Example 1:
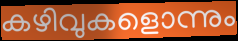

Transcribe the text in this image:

കഴിവുകളൊന്നും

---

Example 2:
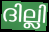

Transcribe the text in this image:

ദില്ലി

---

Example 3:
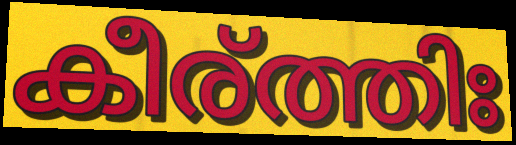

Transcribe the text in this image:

കീര്ത്തിഃ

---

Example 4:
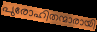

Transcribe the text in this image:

പുരോഹിതന്മാരായി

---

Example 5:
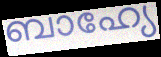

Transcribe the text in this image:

ബാഹ്യേ